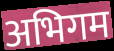
अभिगम